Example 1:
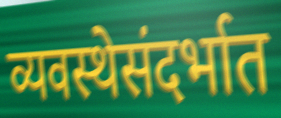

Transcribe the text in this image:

व्यवस्थेसंदर्भात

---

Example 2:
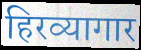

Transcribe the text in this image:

हिरव्यागार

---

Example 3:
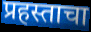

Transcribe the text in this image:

प्रहस्ताचा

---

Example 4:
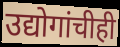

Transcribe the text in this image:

उद्योगांचीही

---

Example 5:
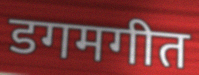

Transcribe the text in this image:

डगमगीत